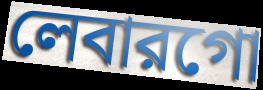
লেবারগো